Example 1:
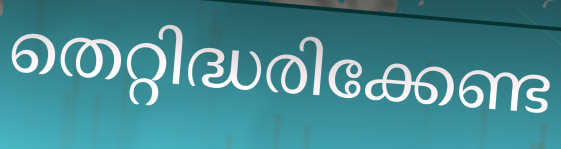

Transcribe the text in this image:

തെറ്റിദ്ധരിക്കേണ്ട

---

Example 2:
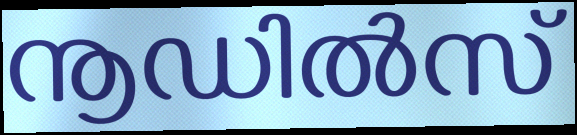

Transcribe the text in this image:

നൂഡിൽസ്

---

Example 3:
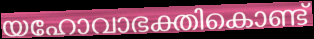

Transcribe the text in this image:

യഹോവാഭക്തികൊണ്ട്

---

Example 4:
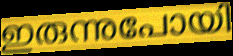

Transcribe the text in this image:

ഇരുന്നുപോയി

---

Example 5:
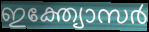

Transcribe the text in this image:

ഇക്ത്യോസർ